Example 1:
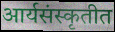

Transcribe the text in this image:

आर्यसंस्कृतीत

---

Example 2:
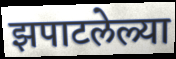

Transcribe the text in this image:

झपाटलेल्या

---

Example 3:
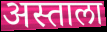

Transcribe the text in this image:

अस्ताला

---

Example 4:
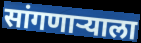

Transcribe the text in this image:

सांगणार्‍याला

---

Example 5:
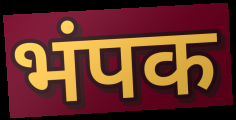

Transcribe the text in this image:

भंपक